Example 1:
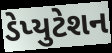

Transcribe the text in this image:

ડેપ્યુટેશન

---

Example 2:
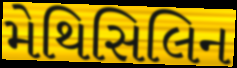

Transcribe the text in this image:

મેથિસિલિન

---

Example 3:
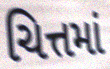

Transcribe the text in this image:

ચિત્તમાં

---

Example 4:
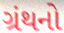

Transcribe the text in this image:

ગ્રંથનો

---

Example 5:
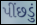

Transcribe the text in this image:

પીંછડું